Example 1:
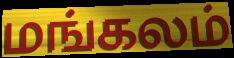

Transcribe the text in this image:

மங்கலம்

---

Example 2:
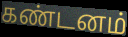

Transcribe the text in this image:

கண்டனம்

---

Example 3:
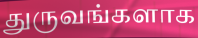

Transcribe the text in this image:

துருவங்களாக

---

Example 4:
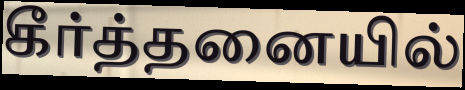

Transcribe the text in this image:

கீர்த்தனையில்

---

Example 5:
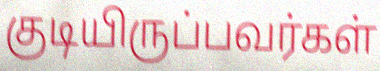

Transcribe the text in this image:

குடியிருப்பவர்கள்